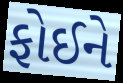
ફોઈને